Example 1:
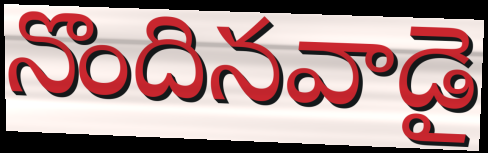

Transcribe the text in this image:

నొందినవాడై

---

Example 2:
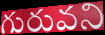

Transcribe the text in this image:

గురువని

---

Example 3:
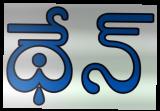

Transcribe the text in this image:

థేన్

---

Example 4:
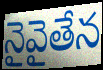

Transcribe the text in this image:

నైవైతేన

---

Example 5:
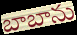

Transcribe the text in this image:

బాబాను